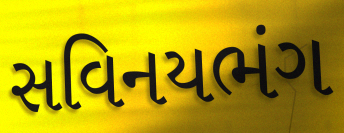
સવિનયભંગ